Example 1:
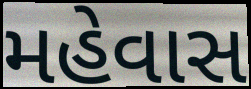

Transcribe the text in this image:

મહેવાસ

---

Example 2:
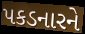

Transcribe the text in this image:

પકડનારને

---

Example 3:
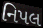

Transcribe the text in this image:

નિપલ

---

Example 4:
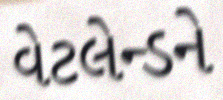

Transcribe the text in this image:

વેટલેન્ડને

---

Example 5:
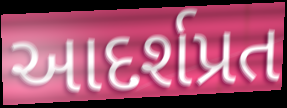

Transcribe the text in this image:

આદર્શપ્રત